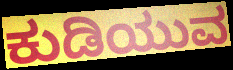
ಕುಡಿಯುವ